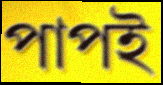
পাপই